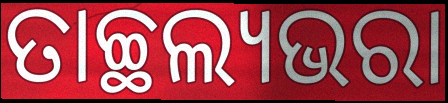
ତାଚ୍ଛଲ୍ୟଭରା